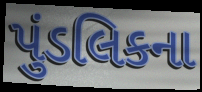
પુંડલિકના